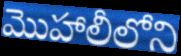
మొహాలీలోని